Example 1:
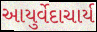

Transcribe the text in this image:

આયુર્વેદાચાર્ય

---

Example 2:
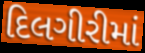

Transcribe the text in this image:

દિલગીરીમાં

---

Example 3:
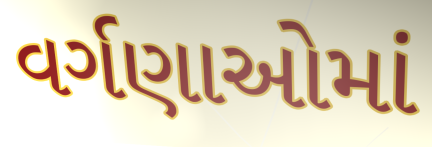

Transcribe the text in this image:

વર્ગણાઓમાં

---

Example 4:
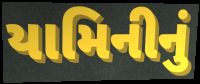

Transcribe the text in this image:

યામિનીનું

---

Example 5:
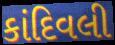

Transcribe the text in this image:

કાંદિવલી